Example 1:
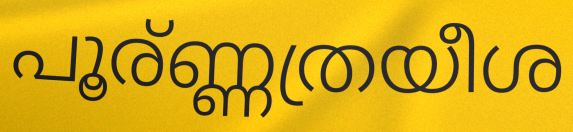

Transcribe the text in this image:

പൂര്ണ്ണത്രയീശ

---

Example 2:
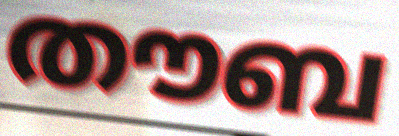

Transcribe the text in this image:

തൗബ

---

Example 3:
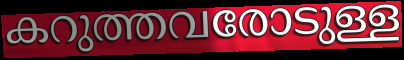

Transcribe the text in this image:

കറുത്തവരോടുള്ള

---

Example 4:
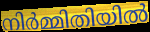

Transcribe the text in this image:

നിർമ്മിതിയിൽ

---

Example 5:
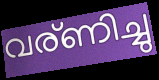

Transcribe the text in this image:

വര്ണിച്ചു